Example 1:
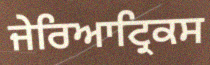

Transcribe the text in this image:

ਜੇਰਿਆਟ੍ਰਿਕਸ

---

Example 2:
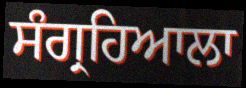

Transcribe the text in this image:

ਸੰਗ੍ਰਹਿਆਲਾ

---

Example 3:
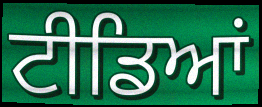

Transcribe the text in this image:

ਟੀਡਿਆਂ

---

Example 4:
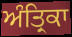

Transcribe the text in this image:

ਅੰਤ੍ਰਿਕਾ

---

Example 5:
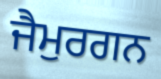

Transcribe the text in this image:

ਜੈਮੁਰਗਨ